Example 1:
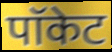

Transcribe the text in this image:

पॉकेट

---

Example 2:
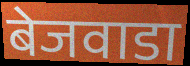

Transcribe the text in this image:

बेजवाडा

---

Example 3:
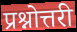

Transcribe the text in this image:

प्रश्नोत्तरी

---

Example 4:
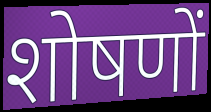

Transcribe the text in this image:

शोषणों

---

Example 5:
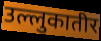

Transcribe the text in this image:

उल्लुकातीर